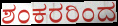
ಶಂಕರರಿಂದ